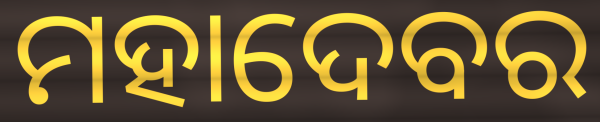
ମହାଦେବର